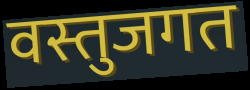
वस्तुजगत